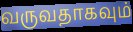
வருவதாகவும்